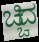
ಚ್ಚಿದ